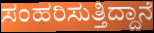
ಸಂಹರಿಸುತ್ತಿದ್ದಾನೆ